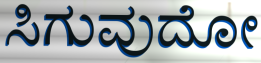
ಸಿಗುವುದೋ